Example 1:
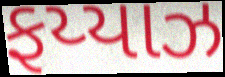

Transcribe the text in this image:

ફય્યાઝ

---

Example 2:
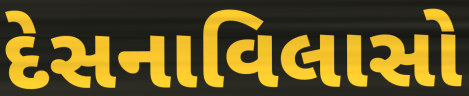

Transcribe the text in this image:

દેસનાવિલાસો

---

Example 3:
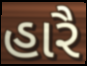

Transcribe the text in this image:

હારૈ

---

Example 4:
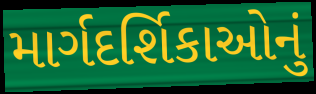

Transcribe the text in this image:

માર્ગદર્શિકાઓનું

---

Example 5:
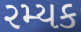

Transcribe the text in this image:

રમ્યક